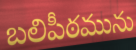
బలిపీఠమును